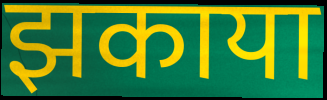
झकाया